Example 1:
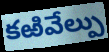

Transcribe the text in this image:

కఱివేల్పు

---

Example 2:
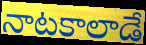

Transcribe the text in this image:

నాటకాలాడే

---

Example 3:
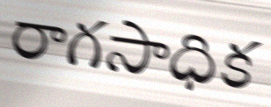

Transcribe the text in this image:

రాగసాధిక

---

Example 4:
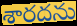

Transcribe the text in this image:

శారదను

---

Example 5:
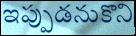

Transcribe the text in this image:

ఇప్పుడనుకొని